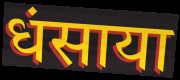
धंसाया